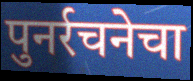
पुनर्रचनेचा